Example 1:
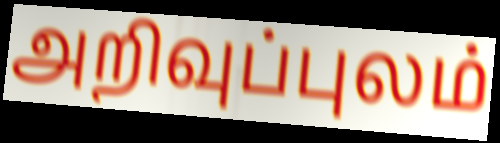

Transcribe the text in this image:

அறிவுப்புலம்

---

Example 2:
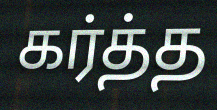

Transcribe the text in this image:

கர்த்த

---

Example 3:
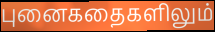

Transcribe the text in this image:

புனைகதைகளிலும்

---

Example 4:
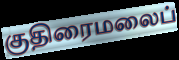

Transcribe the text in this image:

குதிரைமலைப்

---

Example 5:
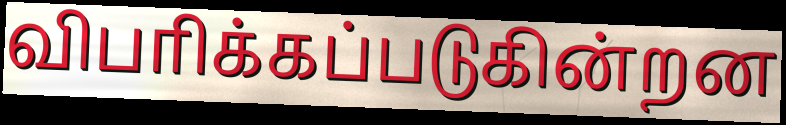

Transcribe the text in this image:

விபரிக்கப்படுகின்றன